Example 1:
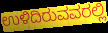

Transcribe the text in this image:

ಉಳಿದಿರುವವರಲ್ಲಿ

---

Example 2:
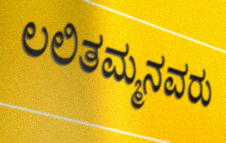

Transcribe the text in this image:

ಲಲಿತಮ್ಮನವರು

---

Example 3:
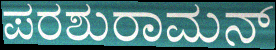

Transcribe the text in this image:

ಪರಶುರಾಮನ್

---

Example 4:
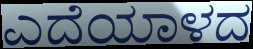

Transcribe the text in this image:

ಎದೆಯಾಳದ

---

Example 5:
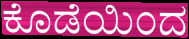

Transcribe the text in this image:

ಕೊಡೆಯಿಂದ